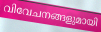
വിവേചനങ്ങളുമായി